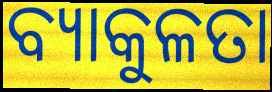
ବ୍ୟାକୁଳତା